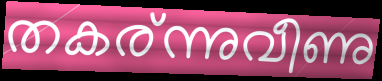
തകര്ന്നുവീണു